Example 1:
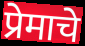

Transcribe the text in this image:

प्रेमाचे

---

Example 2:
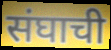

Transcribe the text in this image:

संघाची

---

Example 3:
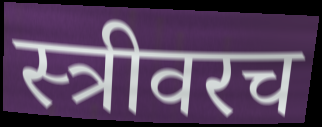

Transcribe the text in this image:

स्त्रीवरच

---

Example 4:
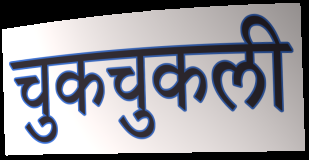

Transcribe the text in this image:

चुकचुकली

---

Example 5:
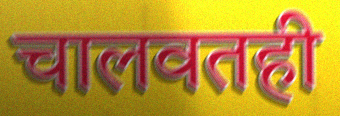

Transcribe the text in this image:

चालवतही